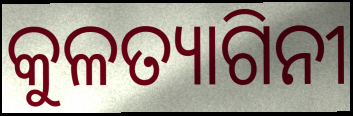
କୁଳତ୍ୟାଗିନୀ